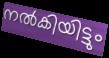
നൽകിയിട്ടും